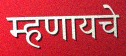
म्हणायचे